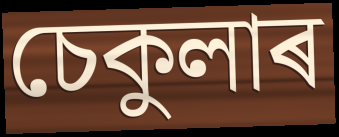
চেকুলাৰ